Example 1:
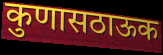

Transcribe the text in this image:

कुणासठाऊक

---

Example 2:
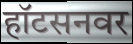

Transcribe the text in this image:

हॉटसनवर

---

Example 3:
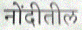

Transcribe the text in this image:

नोंदीतील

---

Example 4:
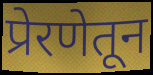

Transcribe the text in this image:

प्रेरणेतून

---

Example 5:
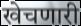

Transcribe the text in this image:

खेचणारी